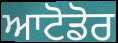
ਆਟੋਡੋਰ